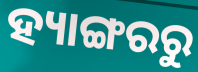
ହ୍ୟାଙ୍ଗରରୁ